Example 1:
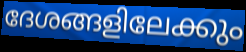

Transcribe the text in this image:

ദേശങ്ങളിലേക്കും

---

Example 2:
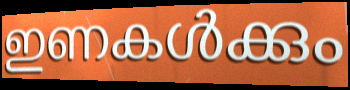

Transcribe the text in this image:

ഇണകൾക്കും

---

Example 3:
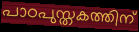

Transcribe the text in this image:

പാഠപുസ്തകത്തിന്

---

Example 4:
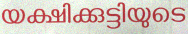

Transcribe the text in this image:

യക്ഷിക്കുട്ടിയുടെ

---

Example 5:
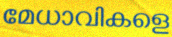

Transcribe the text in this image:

മേധാവികളെ